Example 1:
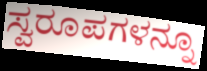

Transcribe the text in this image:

ಸ್ವರೂಪಗಳನ್ನೂ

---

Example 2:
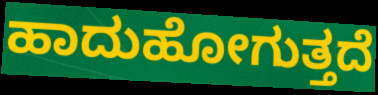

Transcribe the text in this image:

ಹಾದುಹೋಗುತ್ತದೆ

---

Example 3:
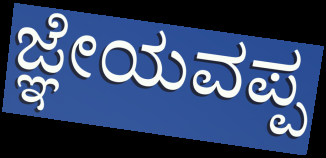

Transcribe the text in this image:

ಜ್ಞೇಯವಪ್ಪ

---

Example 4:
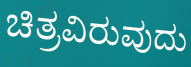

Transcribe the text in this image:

ಚಿತ್ರವಿರುವುದು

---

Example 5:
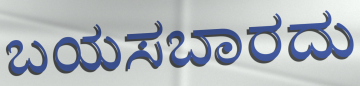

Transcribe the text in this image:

ಬಯಸಬಾರದು